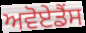
ਅਵੋਏਡੈਂਸ